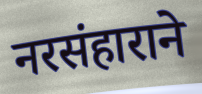
नरसंहाराने